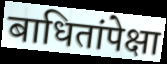
बाधितांपेक्षा